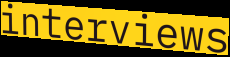
interviews